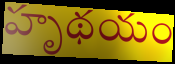
హృథయం